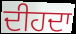
ਦੀਹਦਾ